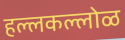
हल्लकल्लोळ